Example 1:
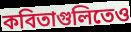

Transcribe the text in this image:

কবিতাগুলিতেও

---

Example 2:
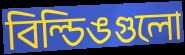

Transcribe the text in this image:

বিল্ডিঙগুলো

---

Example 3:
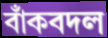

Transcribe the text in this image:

বাঁকবদল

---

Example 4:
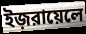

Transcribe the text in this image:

ইজ়রায়েলে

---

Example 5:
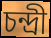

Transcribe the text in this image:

চন্দ্রী